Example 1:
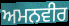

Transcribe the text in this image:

ਅਮਨਵੀਰ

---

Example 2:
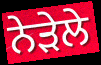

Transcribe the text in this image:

ਨੇੜੇਲੇ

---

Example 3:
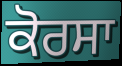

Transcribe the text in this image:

ਕੋਰਸਾ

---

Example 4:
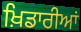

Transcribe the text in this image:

ਖ਼ਿਡਾਰੀਆਂ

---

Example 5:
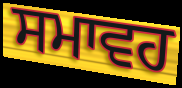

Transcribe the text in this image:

ਸਮਾਵਹ